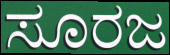
ಸೂರಜ